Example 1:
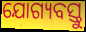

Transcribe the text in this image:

ଯୋଗ୍ୟବସ୍ତୁ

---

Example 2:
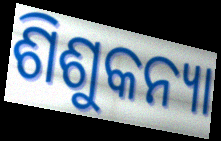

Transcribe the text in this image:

ଶିଶୁକନ୍ୟା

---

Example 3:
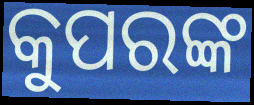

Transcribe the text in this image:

କୁପରଙ୍କ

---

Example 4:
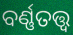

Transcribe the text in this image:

ବର୍ଣ୍ଣତତ୍ତ୍ଵ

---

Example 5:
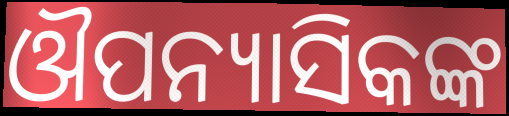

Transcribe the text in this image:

ଔପନ୍ୟାସିକଙ୍କ